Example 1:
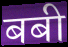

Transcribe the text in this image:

बबी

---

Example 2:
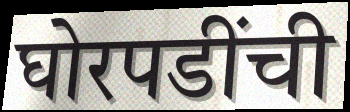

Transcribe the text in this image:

घोरपडींची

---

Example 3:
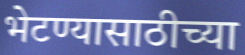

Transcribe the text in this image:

भेटण्यासाठीच्या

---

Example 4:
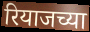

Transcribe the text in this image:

रियाजच्या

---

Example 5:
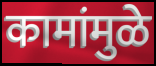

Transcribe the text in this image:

कामांमुळे